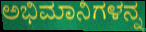
ಅಭಿಮಾನಿಗಳನ್ನ